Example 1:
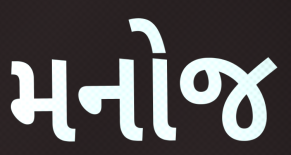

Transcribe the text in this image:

મનોજ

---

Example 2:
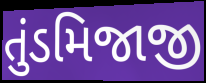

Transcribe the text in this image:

તુંડમિજાજી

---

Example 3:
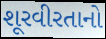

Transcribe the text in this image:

શૂરવીરતાનો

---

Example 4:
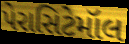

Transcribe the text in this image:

પેરાસિટેમૉલ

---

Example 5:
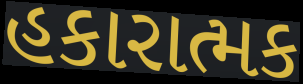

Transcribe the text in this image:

હકારાત્મક